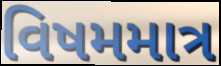
વિષમમાત્ર